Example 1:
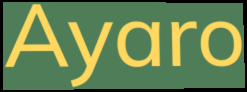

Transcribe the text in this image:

Ayaro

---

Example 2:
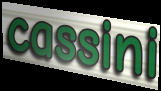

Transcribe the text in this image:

cassini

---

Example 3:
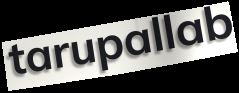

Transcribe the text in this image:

tarupallab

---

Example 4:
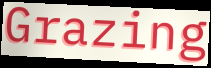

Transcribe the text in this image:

Grazing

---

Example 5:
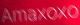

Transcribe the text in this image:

Amaxoxo